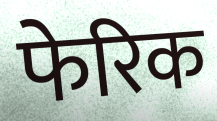
फेरिक